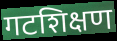
गटशिक्षण